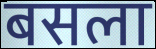
बसला